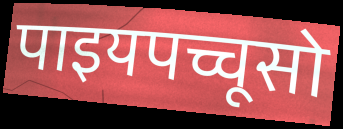
पाइयपच्चूसो